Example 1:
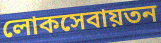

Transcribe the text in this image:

লোকসেবায়তন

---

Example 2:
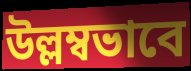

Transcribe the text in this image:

উল্লম্বভাবে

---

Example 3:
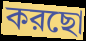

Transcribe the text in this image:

করছো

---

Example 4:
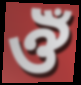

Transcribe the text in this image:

ঔঁ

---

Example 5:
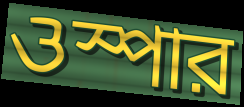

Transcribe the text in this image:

ওস্পার